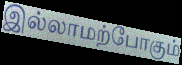
இல்லாமற்போகும்